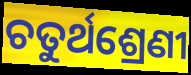
ଚତୁର୍ଥଶ୍ରେଣୀ